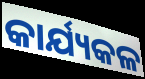
କାର୍ଯ୍ୟକଳ